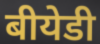
बीयेडी